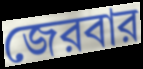
জেরবার